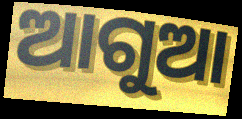
ଆଗୁଆ